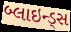
બ્લાઇન્ડ્સ